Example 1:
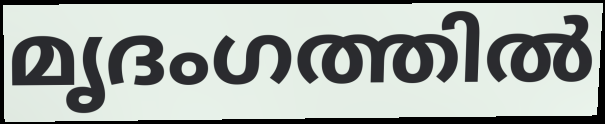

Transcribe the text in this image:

മൃദംഗത്തിൽ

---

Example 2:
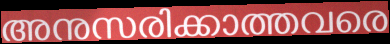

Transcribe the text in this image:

അനുസരിക്കാത്തവരെ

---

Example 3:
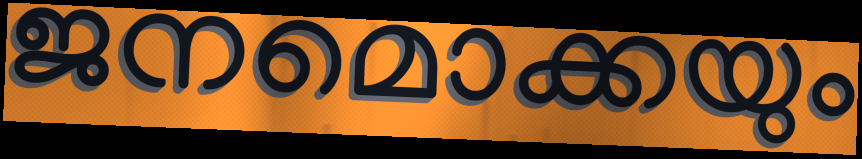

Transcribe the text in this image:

ജനമൊക്കയും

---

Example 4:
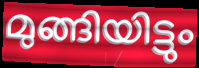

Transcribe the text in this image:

മുങ്ങിയിട്ടും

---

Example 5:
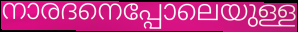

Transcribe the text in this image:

നാരദനെപ്പോലെയുള്ള